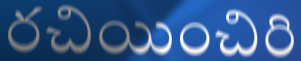
రచియించిరి